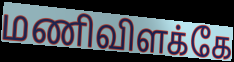
மணிவிளக்கே